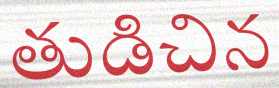
తుడిచిన